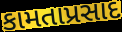
કામતાપ્રસાદ